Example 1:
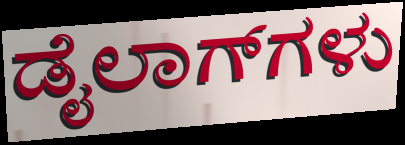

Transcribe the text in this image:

ಡೈಲಾಗ್‌ಗಳು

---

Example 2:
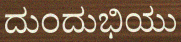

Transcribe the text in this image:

ದುಂದುಭಿಯು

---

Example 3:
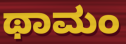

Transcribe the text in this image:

ಥಾಮಂ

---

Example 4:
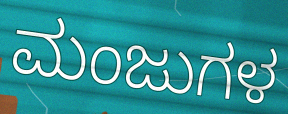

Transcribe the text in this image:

ಮಂಜುಗಳ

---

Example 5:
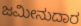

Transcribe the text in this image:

ಜಮೀನುದಾರ